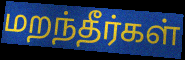
மறந்தீர்கள்